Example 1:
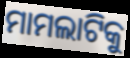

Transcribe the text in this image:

ମାମଲାଟିକୁ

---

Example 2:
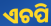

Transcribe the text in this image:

ଏଚପି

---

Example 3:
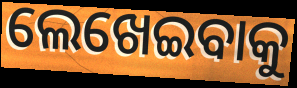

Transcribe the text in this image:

ଲେଖେଇବାକୁ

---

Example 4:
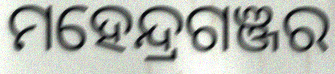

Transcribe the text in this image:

ମହେନ୍ଦ୍ରଗଞ୍ଜର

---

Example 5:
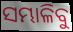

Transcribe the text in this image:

ସମ୍ଭାଳିବୁ